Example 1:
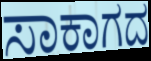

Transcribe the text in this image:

ಸಾಕಾಗದ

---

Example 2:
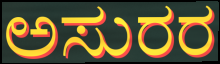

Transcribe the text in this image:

ಅಸುರರ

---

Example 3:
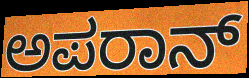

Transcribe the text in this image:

ಅಪರಾನ್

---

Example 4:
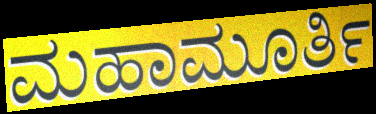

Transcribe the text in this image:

ಮಹಾಮೂರ್ತಿ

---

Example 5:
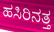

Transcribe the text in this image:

ಹಸಿರಿನತ್ತ